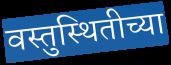
वस्तुस्थितीच्या